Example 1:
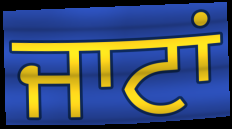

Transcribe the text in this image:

ਜਾਟਾਂ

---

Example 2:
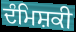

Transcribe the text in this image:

ਦੰਮਿਸ਼ਕੀ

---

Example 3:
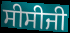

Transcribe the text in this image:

ਸੀਸੀਜੀ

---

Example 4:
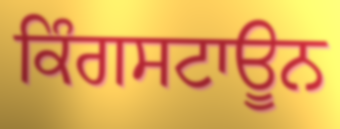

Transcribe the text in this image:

ਕਿੰਗਸਟਾਊਨ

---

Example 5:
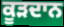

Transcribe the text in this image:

ਕੂੜਦਾਨ